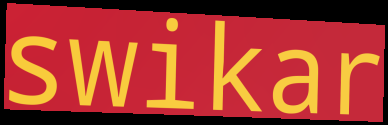
swikar